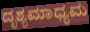
ದೃಶ್ಯಮಾಧ್ಯಮ